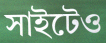
সাইটেও